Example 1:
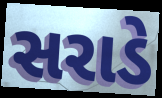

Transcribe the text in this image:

સરાડે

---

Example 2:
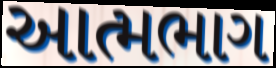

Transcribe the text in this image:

આત્મભાગ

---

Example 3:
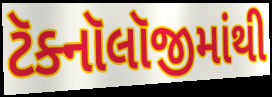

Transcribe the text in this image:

ટૅક્નૉલૉજીમાંથી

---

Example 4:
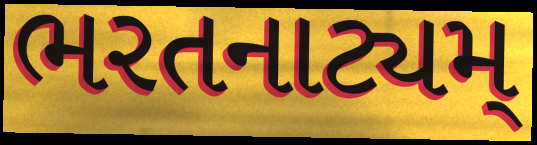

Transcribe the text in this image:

ભરતનાટ્યમ્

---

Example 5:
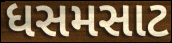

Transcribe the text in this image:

ધસમસાટ